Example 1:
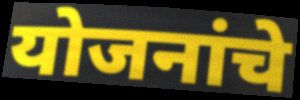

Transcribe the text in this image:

योजनांचे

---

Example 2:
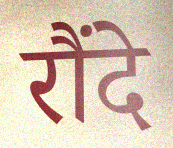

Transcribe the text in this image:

रौंदे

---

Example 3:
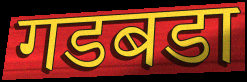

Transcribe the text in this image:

गडबडा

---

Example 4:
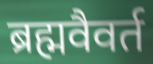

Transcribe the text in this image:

ब्रह्मवैवर्त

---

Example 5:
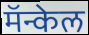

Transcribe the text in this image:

मॅन्केल